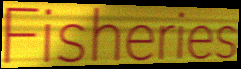
Fisheries